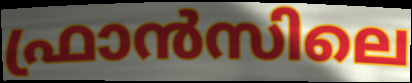
ഫ്രാൻസിലെ